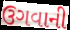
ઉગવાની